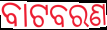
ବାଟବରଣ